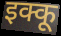
इक्कू